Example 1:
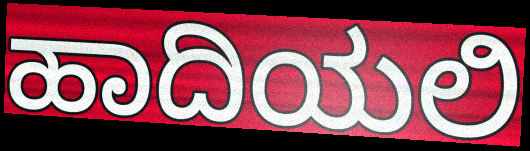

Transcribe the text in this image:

ಹಾದಿಯಲಿ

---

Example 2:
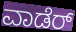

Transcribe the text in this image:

ವಾಡೆರ್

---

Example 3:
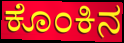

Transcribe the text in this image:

ಕೊಂಕಿನ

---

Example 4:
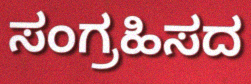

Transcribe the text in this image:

ಸಂಗ್ರಹಿಸದ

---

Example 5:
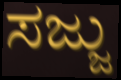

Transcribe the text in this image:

ಸಜ್ಜು